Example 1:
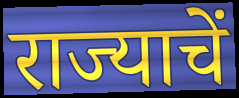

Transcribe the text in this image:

राज्याचें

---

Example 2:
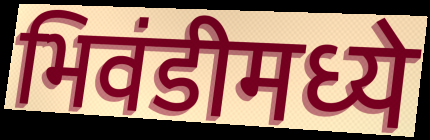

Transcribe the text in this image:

भिवंडीमध्ये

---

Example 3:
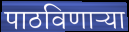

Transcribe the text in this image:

पाठविणाऱ्या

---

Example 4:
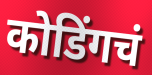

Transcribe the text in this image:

कोडिंगचं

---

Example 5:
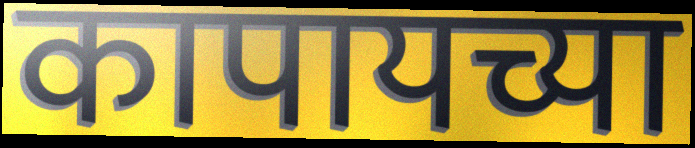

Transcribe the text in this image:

कापायच्या